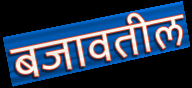
बजावतील